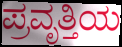
ಪ್ರವೃತ್ತಿಯ